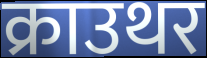
क्राउथर